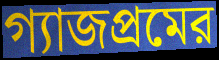
গ্যাজপ্রমের